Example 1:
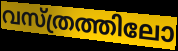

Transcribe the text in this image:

വസ്ത്രത്തിലോ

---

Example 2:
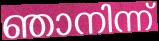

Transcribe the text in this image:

ഞാനിന്ന്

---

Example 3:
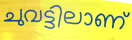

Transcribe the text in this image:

ചുവട്ടിലാണ്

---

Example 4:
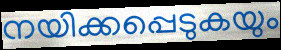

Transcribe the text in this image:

നയിക്കപ്പെടുകയും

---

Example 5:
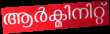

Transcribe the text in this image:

ആർക്മിനിറ്റ്